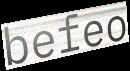
befeo